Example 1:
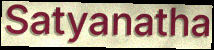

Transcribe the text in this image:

Satyanatha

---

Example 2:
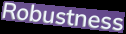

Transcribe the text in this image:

Robustness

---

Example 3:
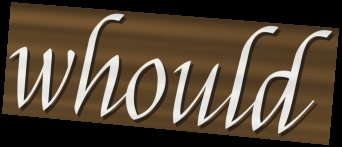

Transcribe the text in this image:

whould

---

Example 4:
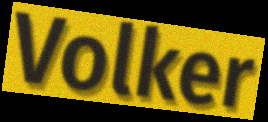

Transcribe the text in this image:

Volker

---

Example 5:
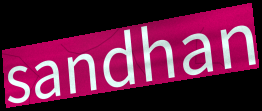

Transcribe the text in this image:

sandhan